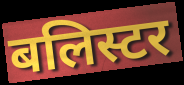
बलिस्टर